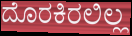
ದೊರಕಿರಲಿಲ್ಲ